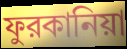
ফুরকানিয়া